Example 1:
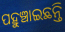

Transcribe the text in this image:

ପହୁଞ୍ଚାଇଛନ୍ତି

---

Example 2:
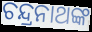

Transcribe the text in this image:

ଚନ୍ଦ୍ରନାଥଙ୍କ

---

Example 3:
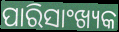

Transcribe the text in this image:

ପାରିସାଂଖ୍ୟକ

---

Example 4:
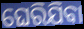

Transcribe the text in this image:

ଘେରିଯିବା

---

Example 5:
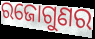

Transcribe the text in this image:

ରଜୋଗୁଣର